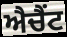
ਐਚੈਂਟ